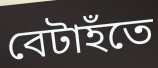
বেটাহঁতে